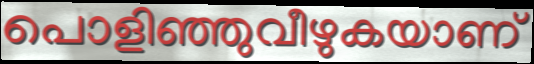
പൊളിഞ്ഞുവീഴുകയാണ്